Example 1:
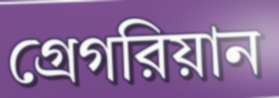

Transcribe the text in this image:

গ্রেগরিয়ান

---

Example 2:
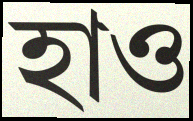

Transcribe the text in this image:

হাও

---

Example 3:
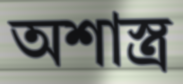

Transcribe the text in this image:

অশাস্ত্র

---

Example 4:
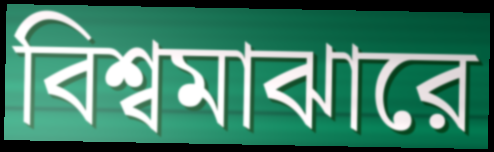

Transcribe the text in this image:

বিশ্বমাঝারে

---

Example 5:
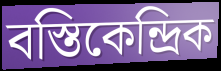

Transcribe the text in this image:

বস্তিকেন্দ্রিক